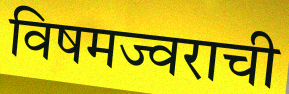
विषमज्वराची